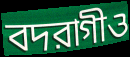
বদরাগীও